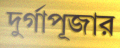
দুর্গাপূজার